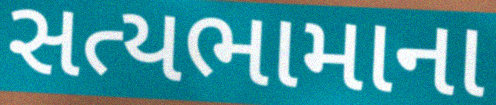
સત્યભામાના